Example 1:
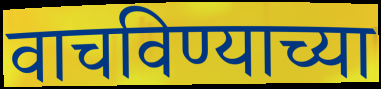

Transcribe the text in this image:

वाचविण्याच्या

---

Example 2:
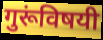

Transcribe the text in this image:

गुरूंविषयी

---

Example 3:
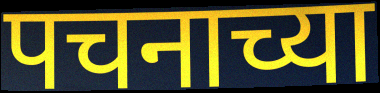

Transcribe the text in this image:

पचनाच्या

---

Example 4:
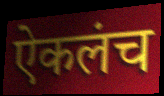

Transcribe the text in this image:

ऐकलंच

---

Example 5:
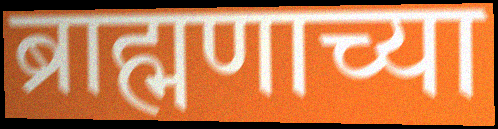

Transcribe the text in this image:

ब्राह्मणाच्या